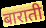
बाराती